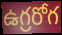
ఉగ్రరోగ